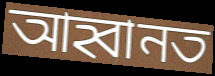
আহ্বানত